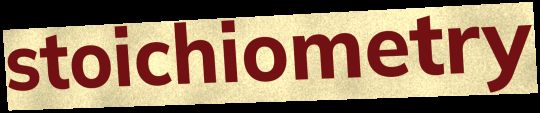
stoichiometry